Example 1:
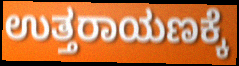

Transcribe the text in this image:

ಉತ್ತರಾಯಣಕ್ಕೆ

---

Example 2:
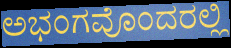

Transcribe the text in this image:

ಅಭಂಗವೊಂದರಲ್ಲಿ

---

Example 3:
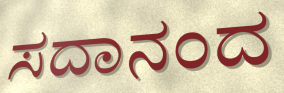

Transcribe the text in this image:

ಸದಾನಂದ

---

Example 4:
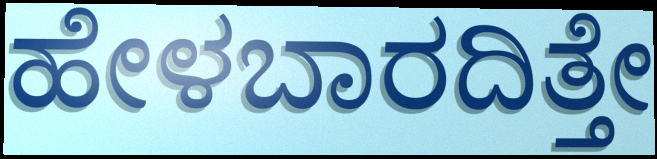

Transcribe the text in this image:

ಹೇಳಬಾರದಿತ್ತೇ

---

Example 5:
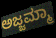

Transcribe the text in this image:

ಅಜ್ಜಮ್ಮಾ